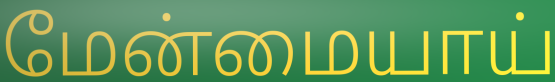
மேன்மையாய்